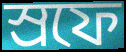
স্রফে